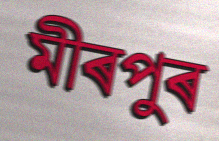
মীৰপুৰ